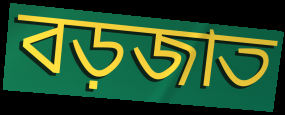
বড়জাত